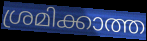
ശ്രമിക്കാത്ത